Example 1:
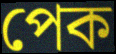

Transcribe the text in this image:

পেক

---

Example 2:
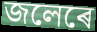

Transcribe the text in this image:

জলেৰে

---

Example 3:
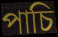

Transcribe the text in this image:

পাচি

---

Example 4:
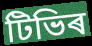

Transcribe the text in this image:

টিভিৰ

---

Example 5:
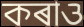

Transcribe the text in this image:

কৰাও